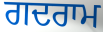
ਗਦਰਾਮ